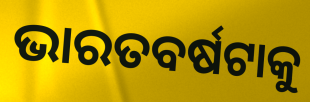
ଭାରତବର୍ଷଟାକୁ